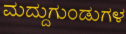
ಮದ್ದುಗುಂಡುಗಳ